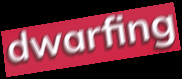
dwarfing